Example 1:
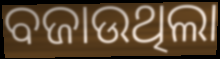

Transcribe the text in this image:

ବଜାଉଥିଲା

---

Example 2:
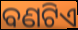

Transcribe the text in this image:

ବଣଟିଏ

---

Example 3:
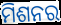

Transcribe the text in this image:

ମିଶନର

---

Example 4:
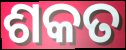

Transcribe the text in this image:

ଶକତ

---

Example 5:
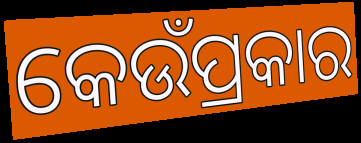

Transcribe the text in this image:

କେଉଁପ୍ରକାର